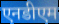
एनडीएम